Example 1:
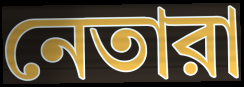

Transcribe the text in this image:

নেতারা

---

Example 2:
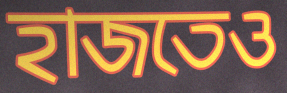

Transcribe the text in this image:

হাজতেও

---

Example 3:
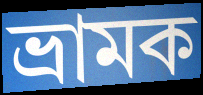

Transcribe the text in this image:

ভ্রামক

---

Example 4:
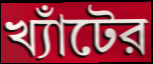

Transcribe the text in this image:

খ্যাঁটের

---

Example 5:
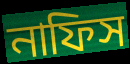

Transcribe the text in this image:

নাফিস